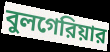
বুলগেরিয়ার